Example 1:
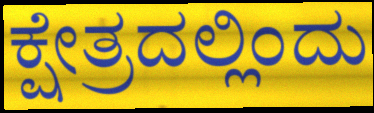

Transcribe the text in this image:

ಕ್ಷೇತ್ರದಲ್ಲಿಂದು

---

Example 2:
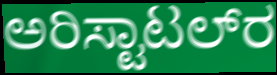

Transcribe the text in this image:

ಅರಿಸ್ಟಾಟಲ್‍ರ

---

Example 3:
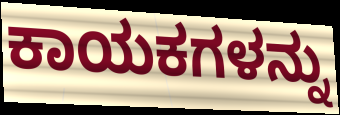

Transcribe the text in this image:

ಕಾಯಕಗಳನ್ನು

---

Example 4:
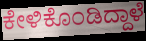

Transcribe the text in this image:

ಕೇಳಿಕೊಂಡಿದ್ದಾಳೆ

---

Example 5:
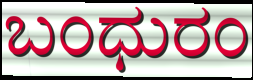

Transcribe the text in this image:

ಬಂಧುರಂ